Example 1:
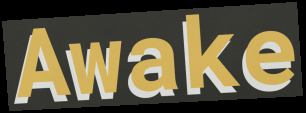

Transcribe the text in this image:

Awake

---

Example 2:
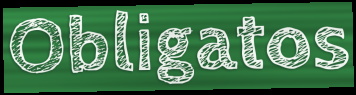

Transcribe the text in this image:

Obligatos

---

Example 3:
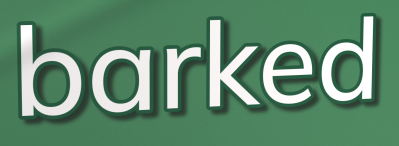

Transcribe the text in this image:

barked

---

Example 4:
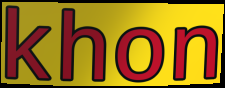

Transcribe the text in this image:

khon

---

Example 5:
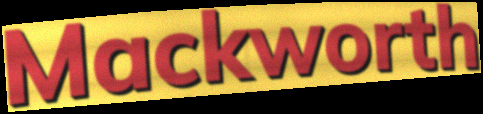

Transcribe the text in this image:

Mackworth